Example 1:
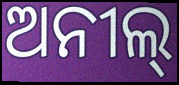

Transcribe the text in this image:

ଅନୀଲ୍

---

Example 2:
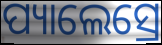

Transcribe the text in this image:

ପ୍ୟାଲେସ୍ରେ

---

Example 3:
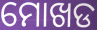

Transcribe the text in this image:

ମୋଖଡ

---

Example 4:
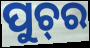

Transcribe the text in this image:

ପୁଚ୍‍ର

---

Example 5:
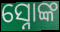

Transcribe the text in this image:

ସ୍ନୋଙ୍କ